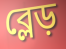
ব্লেড়